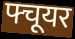
फ्चूयर